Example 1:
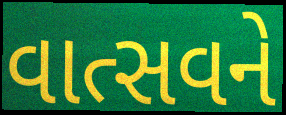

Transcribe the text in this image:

વાત્સવને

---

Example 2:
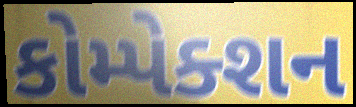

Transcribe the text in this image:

કોમ્પેક્શન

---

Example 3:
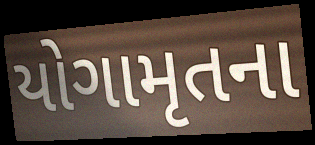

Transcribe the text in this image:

યોગામૃતના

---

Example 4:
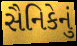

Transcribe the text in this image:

સૈનિકેનું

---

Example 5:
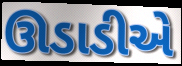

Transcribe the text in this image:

ઊડાડીએ